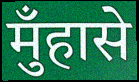
मुँहासे